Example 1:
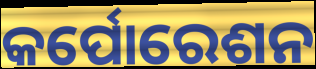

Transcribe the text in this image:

କର୍ପୋରେଶନ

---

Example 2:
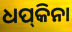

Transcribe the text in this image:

ଧପ୍‍କିନା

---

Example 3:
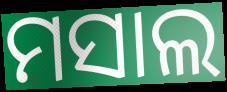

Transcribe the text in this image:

ମସାଲ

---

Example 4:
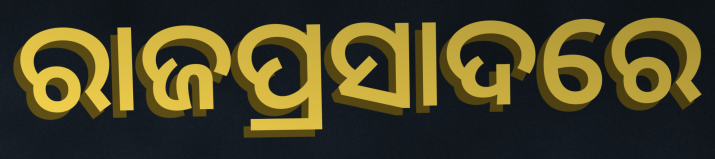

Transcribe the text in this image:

ରାଜପ୍ରସାଦରେ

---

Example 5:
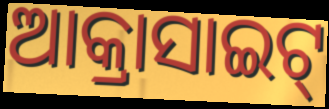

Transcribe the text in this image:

ଆକ୍ରାସାଇଟ୍